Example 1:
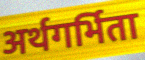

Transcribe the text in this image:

अर्थगर्भिता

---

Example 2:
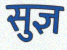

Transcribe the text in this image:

सुज्ञ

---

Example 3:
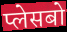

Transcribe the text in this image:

प्लेसबो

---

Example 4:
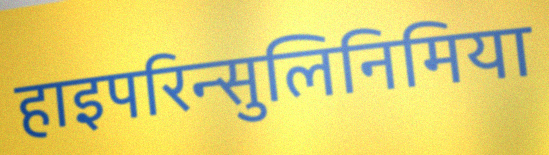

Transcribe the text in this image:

हाइपरिन्सुलिनिमिया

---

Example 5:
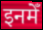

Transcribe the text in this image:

इनमेँ